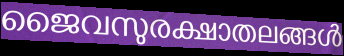
ജൈവസുരക്ഷാതലങ്ങൾ